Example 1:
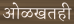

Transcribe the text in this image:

ओळखतही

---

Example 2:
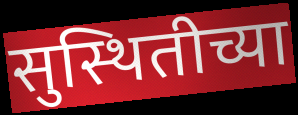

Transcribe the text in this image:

सुस्थितीच्या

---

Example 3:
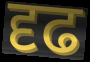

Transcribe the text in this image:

दृढ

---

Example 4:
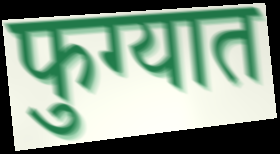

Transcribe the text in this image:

फुग्यात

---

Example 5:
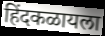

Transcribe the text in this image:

हिंदकळायला